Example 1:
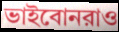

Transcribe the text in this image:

ভাইবোনরাও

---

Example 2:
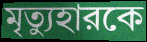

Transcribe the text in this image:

মৃত্যুহারকে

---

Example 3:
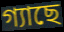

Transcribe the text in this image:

গ্যাছে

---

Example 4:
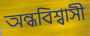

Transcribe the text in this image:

অন্ধবিশ্বাসী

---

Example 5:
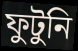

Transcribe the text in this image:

ফুটুনি